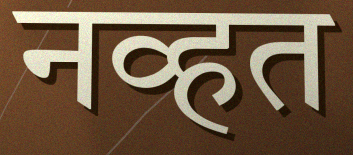
नव्हत